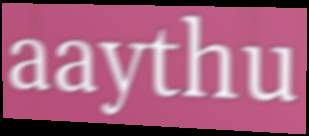
aaythu